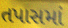
તપાસમાં